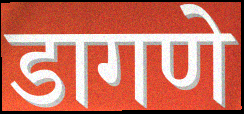
डागणे